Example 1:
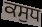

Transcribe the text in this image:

ਕਸੁਧ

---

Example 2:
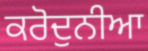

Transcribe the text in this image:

ਕਰੋਦੁਨੀਆ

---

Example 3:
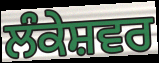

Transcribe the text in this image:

ਲੰਕੇਸ਼ਵਰ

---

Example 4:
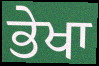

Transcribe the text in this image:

ਭੇਖਾ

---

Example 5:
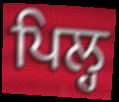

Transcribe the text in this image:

ਪਿਲ੍ਹ